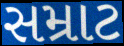
સમ્રાટ